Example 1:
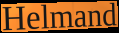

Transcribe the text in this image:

Helmand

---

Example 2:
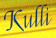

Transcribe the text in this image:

Kulli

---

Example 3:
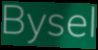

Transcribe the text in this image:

Bysel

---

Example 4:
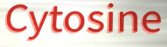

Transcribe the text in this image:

Cytosine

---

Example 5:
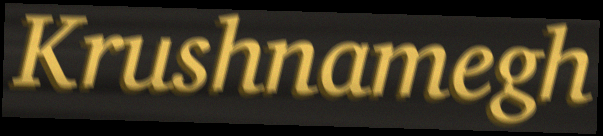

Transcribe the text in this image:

Krushnamegh